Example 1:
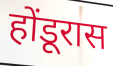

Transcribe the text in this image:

होंडूरास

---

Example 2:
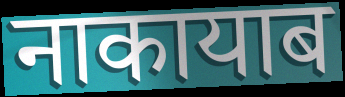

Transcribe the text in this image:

नाकायाब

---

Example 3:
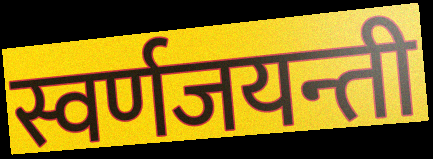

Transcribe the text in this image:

स्वर्णजयन्ती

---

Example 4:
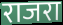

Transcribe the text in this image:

राजरा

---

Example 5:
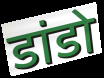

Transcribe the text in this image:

डांडो